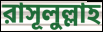
রাসূলুল্লাহ